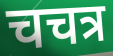
चचत्र